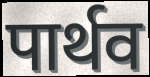
पार्थव